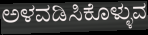
ಅಳವಡಿಸಿಕೊಳ್ಳುವ